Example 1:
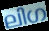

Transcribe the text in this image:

ലിഗ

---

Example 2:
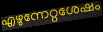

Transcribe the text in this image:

എഴുന്നേറ്റശേഷം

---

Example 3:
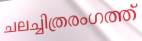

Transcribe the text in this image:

ചലച്ചിത്രരംഗത്ത്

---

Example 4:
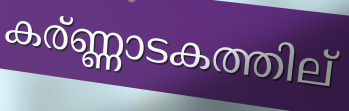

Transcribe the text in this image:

കര്ണ്ണാടകത്തില്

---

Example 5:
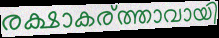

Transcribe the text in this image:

രക്ഷാകര്ത്താവായി